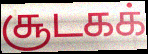
சூடகக்